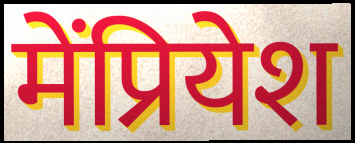
मेंप्रियेश